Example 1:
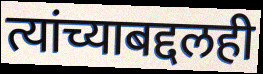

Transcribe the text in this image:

त्यांच्याबद्दलही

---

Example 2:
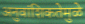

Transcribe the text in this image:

अनुवांशिकतेमुळे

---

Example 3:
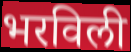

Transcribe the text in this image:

भरविली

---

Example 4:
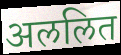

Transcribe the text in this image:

अललित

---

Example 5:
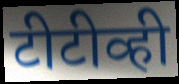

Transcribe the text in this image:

टीटीव्ही